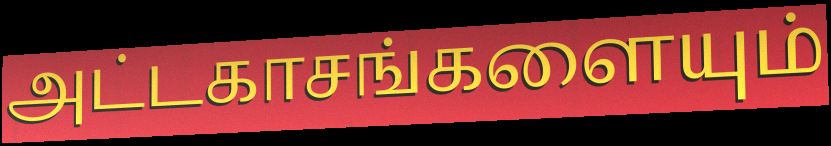
அட்டகாசங்களையும்